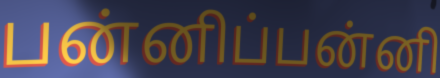
பன்னிப்பன்னி